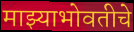
माझ्याभोवतीचे